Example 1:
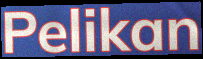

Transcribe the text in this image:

Pelikan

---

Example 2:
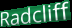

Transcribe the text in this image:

Radcliff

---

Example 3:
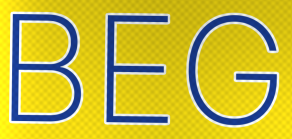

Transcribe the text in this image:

BEG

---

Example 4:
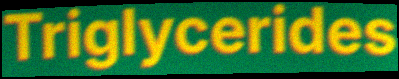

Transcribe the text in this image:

Triglycerides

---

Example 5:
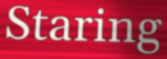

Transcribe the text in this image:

Staring